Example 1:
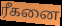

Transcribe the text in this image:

ரீகனை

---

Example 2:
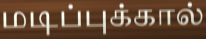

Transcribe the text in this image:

மடிப்புக்கால்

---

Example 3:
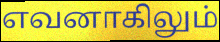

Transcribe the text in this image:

எவனாகிலும்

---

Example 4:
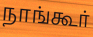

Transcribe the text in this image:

நாங்கூர்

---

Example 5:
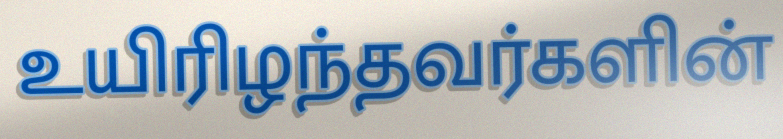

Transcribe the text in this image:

உயிரிழந்தவர்களின்